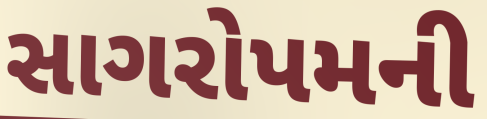
સાગરોપમની